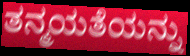
ತನ್ಮಯತೆಯನ್ನು